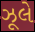
ઝૂલે